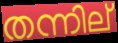
തന്നില്